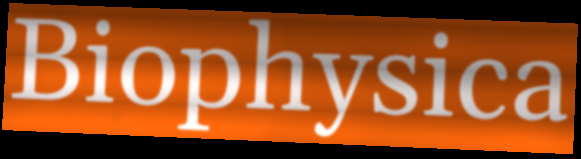
Biophysica